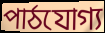
পাঠযোগ্য